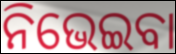
ନିଭେଇବା